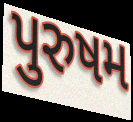
પુરુષમ